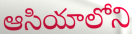
ఆసియాలోని